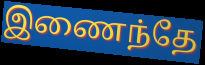
இணைந்தே